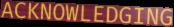
ACKNOWLEDGING